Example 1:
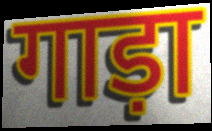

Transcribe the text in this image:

गाड़ा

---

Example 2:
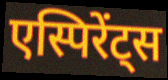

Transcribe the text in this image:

एस्पिरेंट्स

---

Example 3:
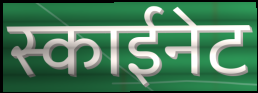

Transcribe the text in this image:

स्काईनेट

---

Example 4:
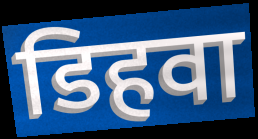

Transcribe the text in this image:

डिहवा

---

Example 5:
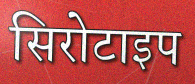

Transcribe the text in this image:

सिरोटाइप